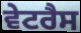
ਵੇਟਰੈਸ